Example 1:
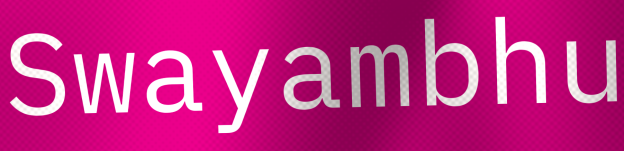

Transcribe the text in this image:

Swayambhu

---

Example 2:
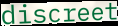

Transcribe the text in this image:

discreet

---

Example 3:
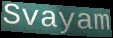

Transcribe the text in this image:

Svayam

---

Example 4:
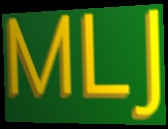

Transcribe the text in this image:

MLJ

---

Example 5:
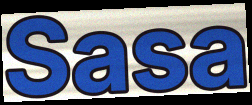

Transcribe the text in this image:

Sasa